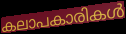
കലാപകാരികൾ